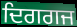
ਦਿਗਗਜ